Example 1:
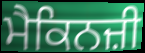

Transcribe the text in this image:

ਮੈਕਿਨਜ਼ੀ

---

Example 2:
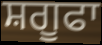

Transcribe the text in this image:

ਸ਼ਗੂਫਾ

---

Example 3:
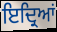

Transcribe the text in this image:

ਇਦ੍ਰਿਆਂ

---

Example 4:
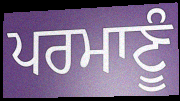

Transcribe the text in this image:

ਪਰਮਾਣੂੰ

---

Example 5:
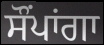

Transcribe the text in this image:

ਸੌਂਪਾਂਗਾ